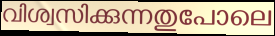
വിശ്വസിക്കുന്നതുപോലെ